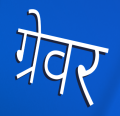
ग्रेवर